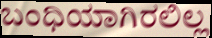
ಬಂಧಿಯಾಗಿರಲಿಲ್ಲ